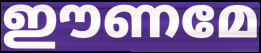
ഈണമേ